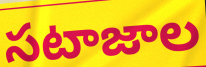
సటాజాల